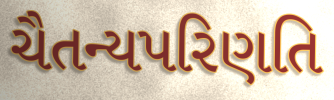
ચૈતન્યપરિણતિ